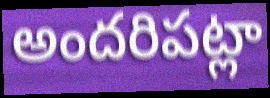
అందరిపట్లా